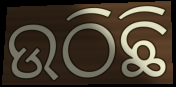
ଉଠିଛି